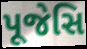
પૂજેસિ